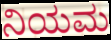
ನಿಯಮ